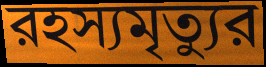
রহস্যমৃত্যুর